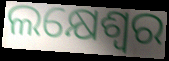
ଲକ୍ଷେଶ୍ୱର